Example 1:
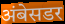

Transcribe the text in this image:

अंबेसडर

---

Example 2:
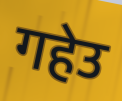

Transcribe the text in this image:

गहेउ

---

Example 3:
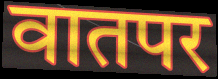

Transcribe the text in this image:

वातपर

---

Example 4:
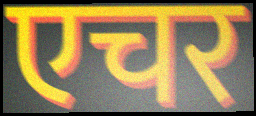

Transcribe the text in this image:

एचर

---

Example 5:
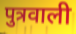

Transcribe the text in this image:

पुत्रवाली